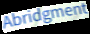
Abridgment